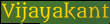
Vijayakant